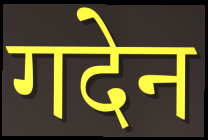
गदेन